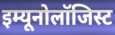
इम्यूनोलॉजिस्ट